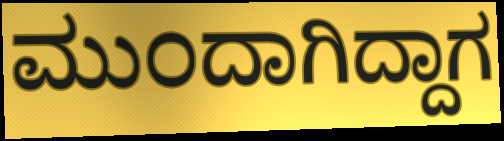
ಮುಂದಾಗಿದ್ದಾಗ